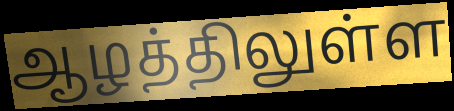
ஆழத்திலுள்ள